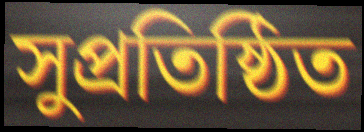
সুপ্রতিষ্ঠিত